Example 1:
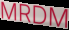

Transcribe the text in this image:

MRDM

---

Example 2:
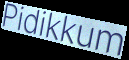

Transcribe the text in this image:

Pidikkum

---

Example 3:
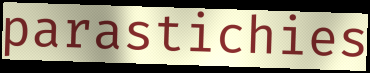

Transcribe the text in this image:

parastichies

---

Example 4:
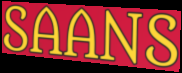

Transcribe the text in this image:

SAANS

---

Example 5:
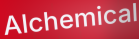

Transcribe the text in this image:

Alchemical